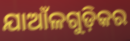
ଯାଆଁଳଗୁଡ଼ିକର